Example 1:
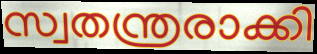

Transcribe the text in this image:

സ്വതന്ത്രരാക്കി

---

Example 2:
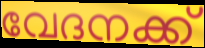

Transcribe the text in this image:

വേദനക്ക്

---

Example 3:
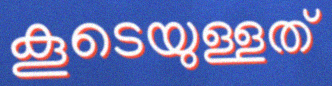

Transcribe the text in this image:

കൂടെയുള്ളത്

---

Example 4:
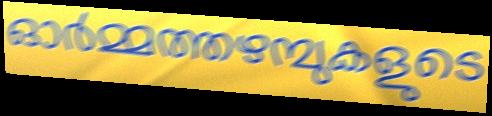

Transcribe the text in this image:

ഓർമ്മത്തഴമ്പുകളുടെ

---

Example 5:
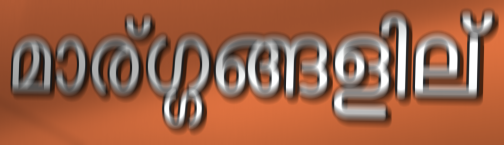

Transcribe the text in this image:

മാര്ഗ്ഗങ്ങളില്